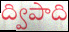
ద్విపాది